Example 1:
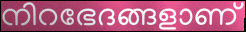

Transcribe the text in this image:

നിറഭേദങ്ങളാണ്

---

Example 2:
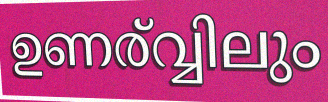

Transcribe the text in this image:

ഉണര്വ്വിലും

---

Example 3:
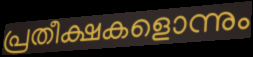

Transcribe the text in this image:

പ്രതീക്ഷകളൊന്നും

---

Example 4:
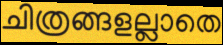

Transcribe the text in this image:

ചിത്രങ്ങളല്ലാതെ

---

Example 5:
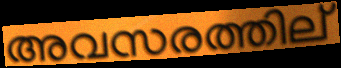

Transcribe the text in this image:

അവസരത്തില്